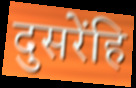
दुसरेंहि